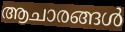
ആചാരങ്ങൾ